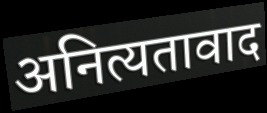
अनित्यतावाद